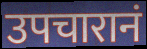
उपचारानं